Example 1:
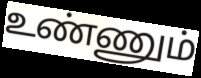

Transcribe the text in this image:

உண்ணும்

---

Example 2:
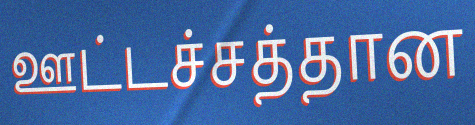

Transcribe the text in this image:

ஊட்டச்சத்தான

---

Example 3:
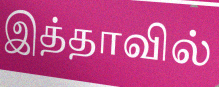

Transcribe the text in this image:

இத்தாவில்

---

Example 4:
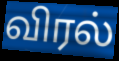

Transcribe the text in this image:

விரல்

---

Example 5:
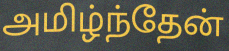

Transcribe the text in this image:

அமிழ்ந்தேன்